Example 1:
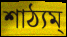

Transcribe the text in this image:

শাঠ্যম্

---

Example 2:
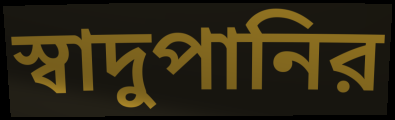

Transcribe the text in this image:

স্বাদুপানির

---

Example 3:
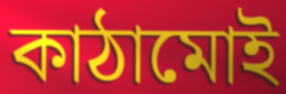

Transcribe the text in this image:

কাঠামোই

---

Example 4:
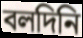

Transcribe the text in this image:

বলদিনি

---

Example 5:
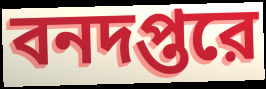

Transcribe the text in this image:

বনদপ্তরে